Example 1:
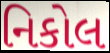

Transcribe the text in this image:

નિકોલ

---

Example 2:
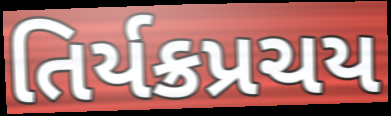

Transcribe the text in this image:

તિર્યક્રપ્રચય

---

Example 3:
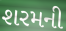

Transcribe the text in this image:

શરમની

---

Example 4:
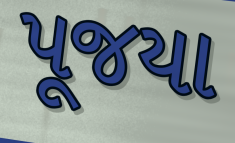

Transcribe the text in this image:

પૂજયા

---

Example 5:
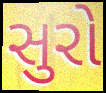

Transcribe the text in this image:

સુરો